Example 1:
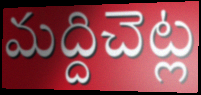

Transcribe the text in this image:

మద్దిచెట్ల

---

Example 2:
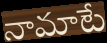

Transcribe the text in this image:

నామాటే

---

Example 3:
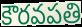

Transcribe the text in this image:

కౌరవపతి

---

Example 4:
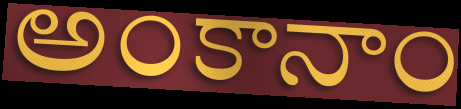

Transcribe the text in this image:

అంకానాం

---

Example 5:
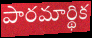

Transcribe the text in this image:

పారమార్థిక